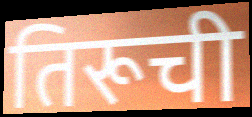
तिरूची